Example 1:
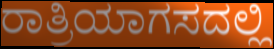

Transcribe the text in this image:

ರಾತ್ರಿಯಾಗಸದಲ್ಲಿ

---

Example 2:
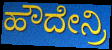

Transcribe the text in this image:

ಹೌದೇನ್ರಿ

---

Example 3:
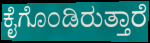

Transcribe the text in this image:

ಕೈಗೊಂಡಿರುತ್ತಾರೆ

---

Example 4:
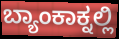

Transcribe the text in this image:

ಬ್ಯಾಂಕಾಕ್ನಲ್ಲಿ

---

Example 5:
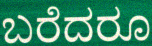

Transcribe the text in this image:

ಬರೆದರೂ